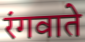
रंगवाते